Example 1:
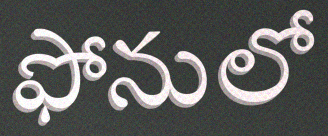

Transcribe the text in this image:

ఫోనులో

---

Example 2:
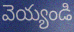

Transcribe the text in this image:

వెయ్యండి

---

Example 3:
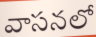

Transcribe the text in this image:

వాసనలో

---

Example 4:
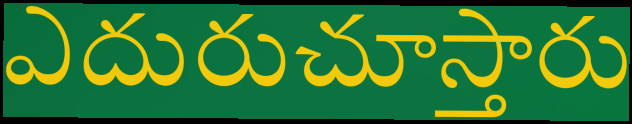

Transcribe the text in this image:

ఎదురుచూస్తారు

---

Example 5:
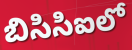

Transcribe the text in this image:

బిసిసిఐలో